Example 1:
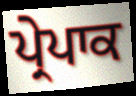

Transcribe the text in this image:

ਪ੍ਰੇਪਾਕ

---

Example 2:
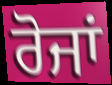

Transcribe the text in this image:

ਰੋਜਾਂ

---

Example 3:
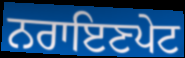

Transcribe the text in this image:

ਨਰਾਇਣਪੇਟ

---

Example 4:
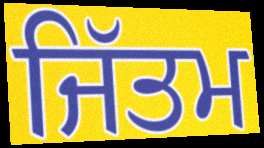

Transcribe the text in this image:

ਜਿੱਤਮ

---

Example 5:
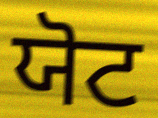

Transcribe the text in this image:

ਯੋਟ